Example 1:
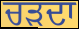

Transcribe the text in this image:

ਚੜਦਾ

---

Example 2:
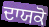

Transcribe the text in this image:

ਦਾਯਕੋ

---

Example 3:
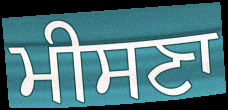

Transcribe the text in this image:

ਮੀਸਣਾ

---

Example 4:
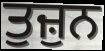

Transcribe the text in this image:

ਤੁਜ਼ੁਨ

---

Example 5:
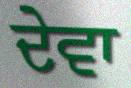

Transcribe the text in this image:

ਦੇਵਾ